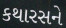
કથારસને